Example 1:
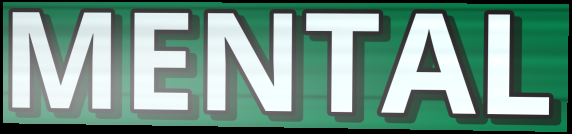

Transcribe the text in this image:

MENTAL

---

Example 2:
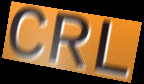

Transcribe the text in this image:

CRL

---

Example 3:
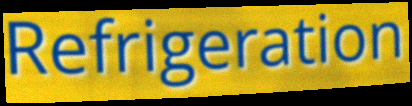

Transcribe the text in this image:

Refrigeration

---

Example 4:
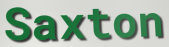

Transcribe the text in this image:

Saxton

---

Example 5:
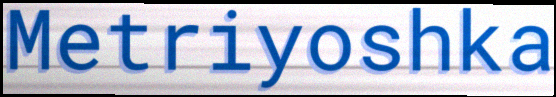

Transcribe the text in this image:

Metriyoshka